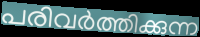
പരിവർത്തിക്കുന്ന